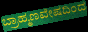
ಬ್ರಾಹ್ಮಣವೇಷದಿಂದ